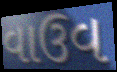
વાઉવ